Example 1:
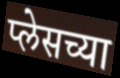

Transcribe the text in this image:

प्लेसच्या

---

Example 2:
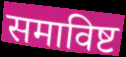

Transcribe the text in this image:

समाविष्ट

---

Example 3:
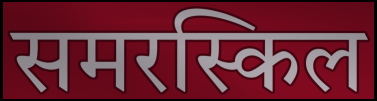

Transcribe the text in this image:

समरस्किल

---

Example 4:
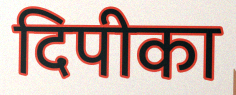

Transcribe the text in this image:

दिपीका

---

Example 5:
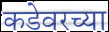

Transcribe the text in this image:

कडेवरच्या